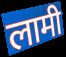
लामी